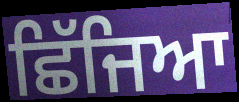
ਛਿੱਜਿਆ